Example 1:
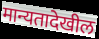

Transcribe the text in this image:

मान्यतादेखील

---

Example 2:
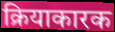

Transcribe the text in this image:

क्रियाकारक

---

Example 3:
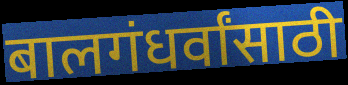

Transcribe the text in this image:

बालगंधर्वांसाठी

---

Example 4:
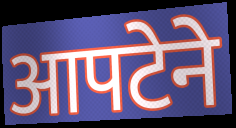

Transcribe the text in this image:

आपटेने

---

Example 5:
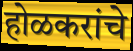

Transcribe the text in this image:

होळकरांचे